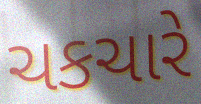
ચકચારે